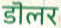
डॊलर